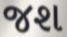
જશ